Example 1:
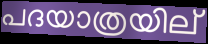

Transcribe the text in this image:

പദയാത്രയില്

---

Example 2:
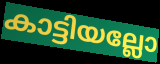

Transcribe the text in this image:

കാട്ടിയല്ലോ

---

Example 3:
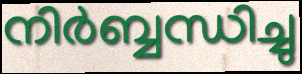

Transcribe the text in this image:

നിർബ്ബന്ധിച്ചു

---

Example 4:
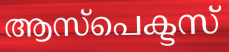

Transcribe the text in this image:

ആസ്പെക്ടസ്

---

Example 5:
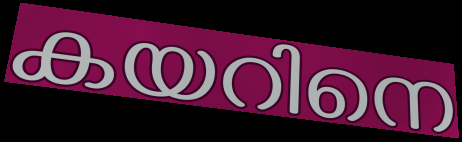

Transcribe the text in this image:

കയറിനെ